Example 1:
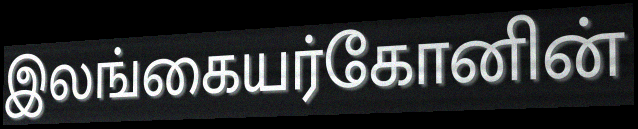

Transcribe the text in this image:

இலங்கையர்கோனின்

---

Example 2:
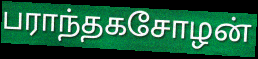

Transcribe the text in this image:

பராந்தகசோழன்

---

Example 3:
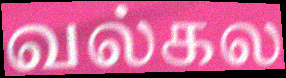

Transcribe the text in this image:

வல்கல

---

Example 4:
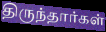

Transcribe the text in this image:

திருந்தார்கள்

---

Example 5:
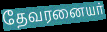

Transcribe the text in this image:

தேவரனையர்